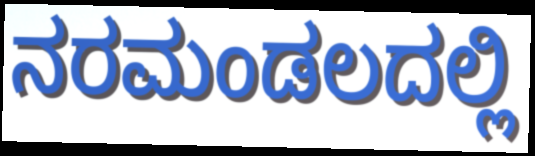
ನರಮಂಡಲದಲ್ಲಿ